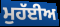
ਮੁਹੱਈਅ